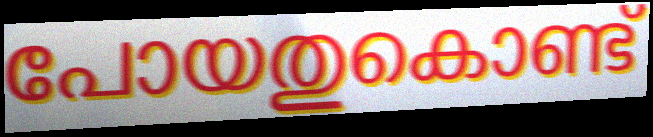
പോയതുകൊണ്ട്